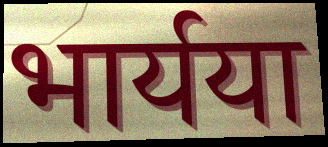
भार्यया